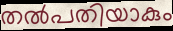
തൽപതിയാകും